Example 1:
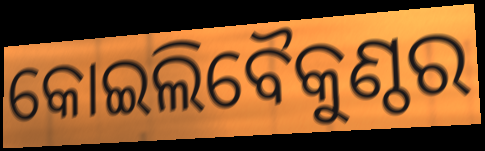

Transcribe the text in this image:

କୋଇଲିବୈକୁଣ୍ଠର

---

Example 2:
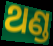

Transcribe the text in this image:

ଥଣ୍ଡ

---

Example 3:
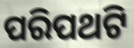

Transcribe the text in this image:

ପରିପଥଟି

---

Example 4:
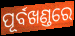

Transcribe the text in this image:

ପୂର୍ବଖଣ୍ଡରେ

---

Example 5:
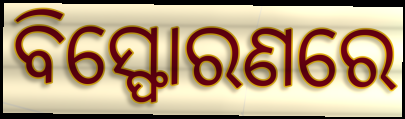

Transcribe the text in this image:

ବିସ୍ଫୋରଣରେ